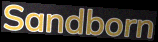
Sandborn